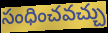
సంధించవచ్చు